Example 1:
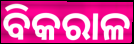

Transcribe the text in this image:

ବିକରାଳ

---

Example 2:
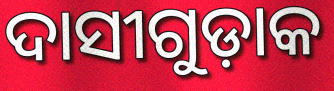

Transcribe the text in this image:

ଦାସୀଗୁଡ଼ାକ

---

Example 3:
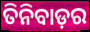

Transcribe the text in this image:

ତିନିବାଡ଼ର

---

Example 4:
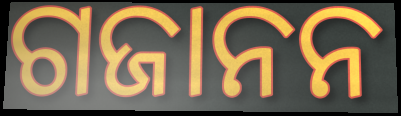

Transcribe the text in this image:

ଗଜାନନ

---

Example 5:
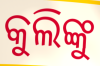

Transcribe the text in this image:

କୁଲିଙ୍କୁ